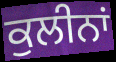
ਕੁਲੀਨਾਂ